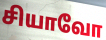
சியாவோ